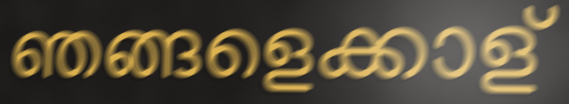
ഞങ്ങളെക്കാള്